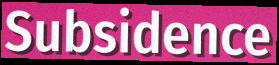
Subsidence